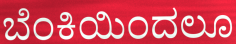
ಬೆಂಕಿಯಿಂದಲೂ